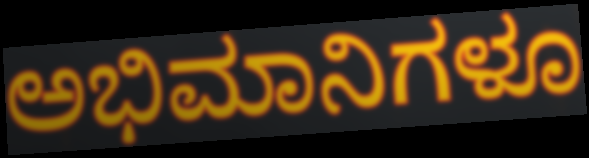
ಅಭಿಮಾನಿಗಳೂ